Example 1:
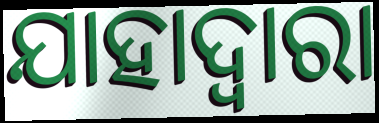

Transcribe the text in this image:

ଯାହାଦ୍ୱାରା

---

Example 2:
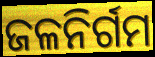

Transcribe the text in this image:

ଜଳନିର୍ଗମ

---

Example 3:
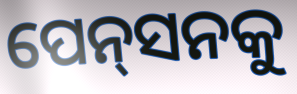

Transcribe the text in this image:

ପେନ୍‌ସନକୁ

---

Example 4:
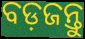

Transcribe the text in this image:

ବଡ଼ଜନ୍ତୁ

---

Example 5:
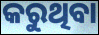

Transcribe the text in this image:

କରୁଥିବା